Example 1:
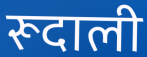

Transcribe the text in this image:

रूदाली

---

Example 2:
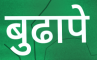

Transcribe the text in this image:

बुढापे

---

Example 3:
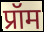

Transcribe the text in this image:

प्रॉम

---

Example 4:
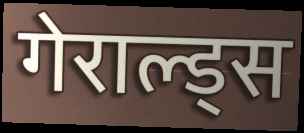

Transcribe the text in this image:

गेराल्ड्स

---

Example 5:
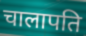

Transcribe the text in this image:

चालापति